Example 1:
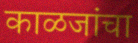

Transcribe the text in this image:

काळजांचा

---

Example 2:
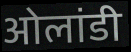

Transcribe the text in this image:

ओलांडी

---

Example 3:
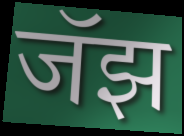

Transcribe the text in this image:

जॅझ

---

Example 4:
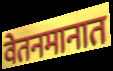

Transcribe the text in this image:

वेतनमानात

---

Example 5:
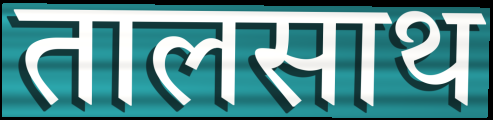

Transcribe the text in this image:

तालसाथ